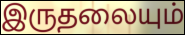
இருதலையும்